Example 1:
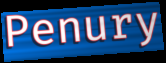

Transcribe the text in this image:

Penury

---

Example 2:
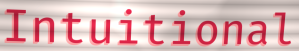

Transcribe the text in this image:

Intuitional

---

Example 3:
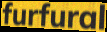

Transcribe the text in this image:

furfural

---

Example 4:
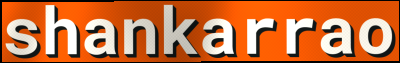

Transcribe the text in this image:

shankarrao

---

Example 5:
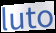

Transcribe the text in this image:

luto